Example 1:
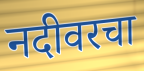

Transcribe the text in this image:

नदीवरचा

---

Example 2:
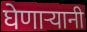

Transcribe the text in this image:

घेणाऱ्यानी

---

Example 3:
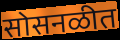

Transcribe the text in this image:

सोसनळीत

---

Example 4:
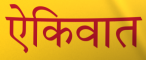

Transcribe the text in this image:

ऐकिवात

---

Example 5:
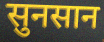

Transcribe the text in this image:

सुनसान